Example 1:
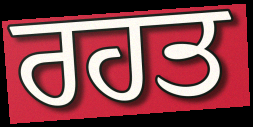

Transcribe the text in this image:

ਰਹਤ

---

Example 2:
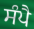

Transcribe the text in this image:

ਸੰਪੈ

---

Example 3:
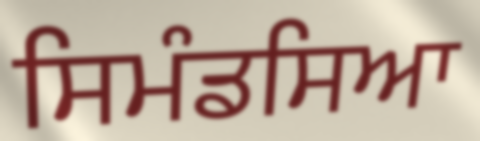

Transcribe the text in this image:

ਸਿਮੰਡਸਿਆ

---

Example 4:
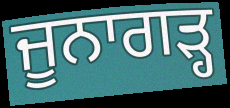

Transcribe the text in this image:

ਜੂਨਾਗੜ੍ਹ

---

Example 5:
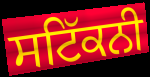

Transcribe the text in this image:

ਸਟਿੱਕਨੀ